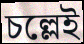
চল্লেই